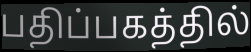
பதிப்பகத்தில்